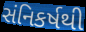
સંનિકર્ષથી